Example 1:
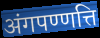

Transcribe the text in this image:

अंगपण्णत्ति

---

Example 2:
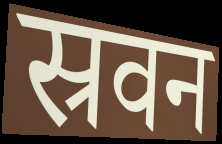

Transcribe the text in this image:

स्रवन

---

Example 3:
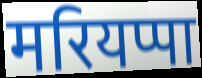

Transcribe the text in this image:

मरियप्पा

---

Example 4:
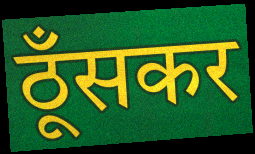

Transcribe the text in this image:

ठूँसकर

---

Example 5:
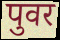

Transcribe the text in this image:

पुवर